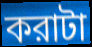
করাটা